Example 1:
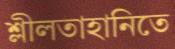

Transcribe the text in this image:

শ্লীলতাহানিতে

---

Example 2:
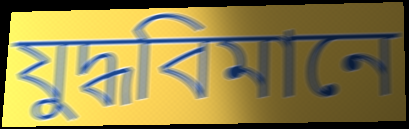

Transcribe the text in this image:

যুদ্ধবিমানে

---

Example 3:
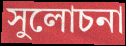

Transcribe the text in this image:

সুলোচনা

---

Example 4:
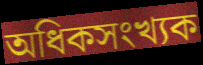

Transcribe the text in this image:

অধিকসংখ্যক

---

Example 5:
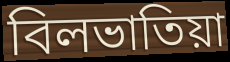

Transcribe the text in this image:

বিলভাতিয়া